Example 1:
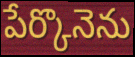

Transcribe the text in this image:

పేర్కొనెను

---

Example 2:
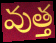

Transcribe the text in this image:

వుత్త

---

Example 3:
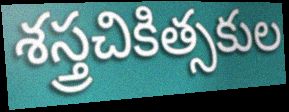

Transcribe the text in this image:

శస్త్రచికిత్సకుల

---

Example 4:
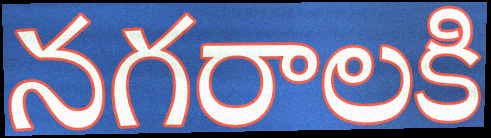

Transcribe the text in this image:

నగరాలకి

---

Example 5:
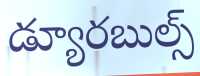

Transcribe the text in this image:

డ్యూరబుల్స్